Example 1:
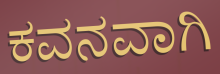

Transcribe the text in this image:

ಕವನವಾಗಿ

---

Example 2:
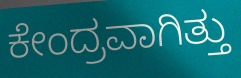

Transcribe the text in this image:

ಕೇಂದ್ರವಾಗಿತ್ತು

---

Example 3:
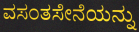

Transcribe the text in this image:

ವಸಂತಸೇನೆಯನ್ನು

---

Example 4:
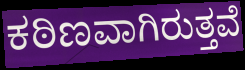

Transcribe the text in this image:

ಕಠಿಣವಾಗಿರುತ್ತವೆ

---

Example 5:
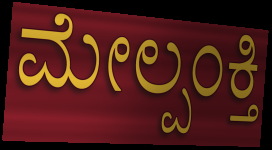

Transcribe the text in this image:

ಮೇಲ್ಪಂಕ್ತಿ